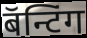
बॅन्टिंग